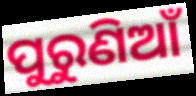
ପୁରୁଣିଆଁ